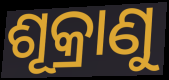
ଶୂକ୍ରାଣୁ